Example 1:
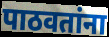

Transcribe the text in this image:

पाठवतांना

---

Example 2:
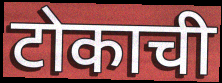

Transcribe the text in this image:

टोकाची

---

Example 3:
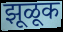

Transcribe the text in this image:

झूळूक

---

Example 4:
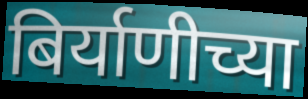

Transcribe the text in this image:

बिर्याणीच्या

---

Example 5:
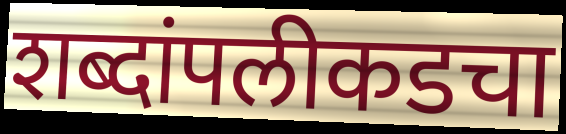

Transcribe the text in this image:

शब्दांपलीकडचा